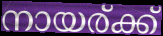
നായര്ക്ക്